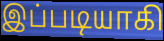
இப்படியாகி